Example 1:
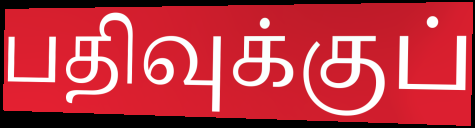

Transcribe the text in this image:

பதிவுக்குப்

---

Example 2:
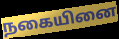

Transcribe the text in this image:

நகையினை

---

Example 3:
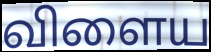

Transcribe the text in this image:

விளைய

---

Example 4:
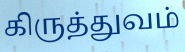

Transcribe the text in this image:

கிருத்துவம்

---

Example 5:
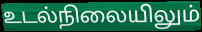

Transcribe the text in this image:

உடல்நிலையிலும்